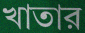
খাতার